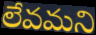
లేవమని